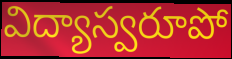
విద్యాస్వరూపో